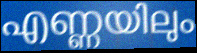
എണ്ണയിലും